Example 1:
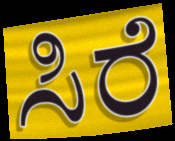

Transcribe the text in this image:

ಸಿರೆ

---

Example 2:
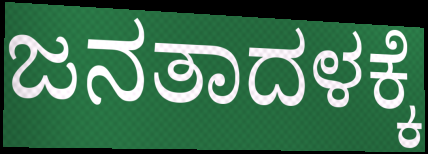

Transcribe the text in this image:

ಜನತಾದಳಕ್ಕೆ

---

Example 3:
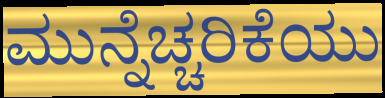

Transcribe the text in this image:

ಮುನ್ನೆಚ್ಚರಿಕೆಯು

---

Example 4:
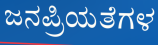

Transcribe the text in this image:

ಜನಪ್ರಿಯತೆಗಳ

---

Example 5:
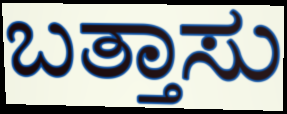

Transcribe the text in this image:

ಬತ್ತಾಸು